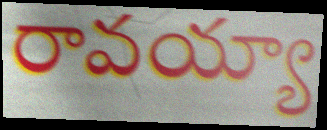
రావయ్యా